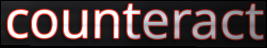
counteract